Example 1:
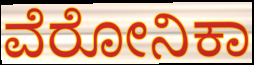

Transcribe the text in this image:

ವೆರೋನಿಕಾ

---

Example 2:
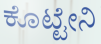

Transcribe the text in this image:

ಕೊಟ್ಟೇನಿ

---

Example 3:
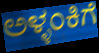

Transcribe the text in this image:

ಅಳ್ಳಂಕಿಗೆ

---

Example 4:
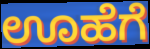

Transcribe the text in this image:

ಊಹೆಗೆ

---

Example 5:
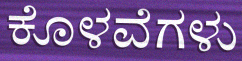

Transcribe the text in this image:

ಕೊಳವೆಗಳು